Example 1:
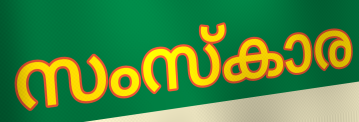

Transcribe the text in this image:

സംസ്കാര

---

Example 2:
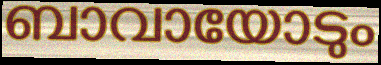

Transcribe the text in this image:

ബാവായോടും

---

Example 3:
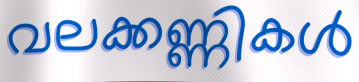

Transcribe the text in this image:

വലക്കണ്ണികൾ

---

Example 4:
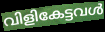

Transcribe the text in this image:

വിളികേട്ടവൾ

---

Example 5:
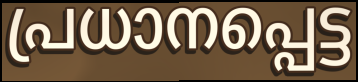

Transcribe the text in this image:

പ്രധാനപ്പെട്ട